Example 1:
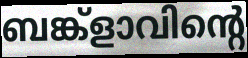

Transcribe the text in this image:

ബങ്ക്ളാവിന്റെ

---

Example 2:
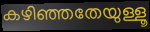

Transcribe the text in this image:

കഴിഞ്ഞതേയുള്ളൂ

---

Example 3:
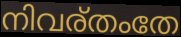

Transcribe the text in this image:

നിവര്തംതേ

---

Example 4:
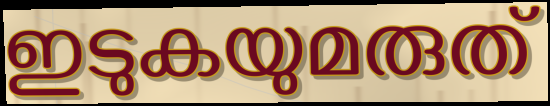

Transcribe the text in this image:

ഇടുകയുമരുത്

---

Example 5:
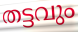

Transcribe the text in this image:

തട്ടവും